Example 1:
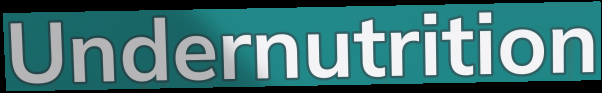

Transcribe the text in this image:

Undernutrition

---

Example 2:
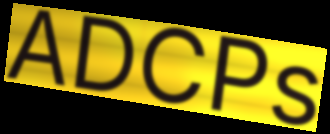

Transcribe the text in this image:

ADCPs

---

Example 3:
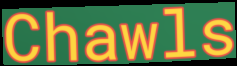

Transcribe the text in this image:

Chawls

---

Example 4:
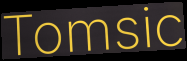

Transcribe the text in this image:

Tomsic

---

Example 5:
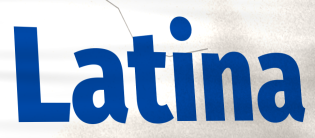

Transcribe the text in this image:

Latina